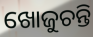
ଖୋଜୁଚନ୍ତି